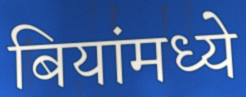
बियांमध्ये